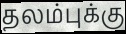
தலம்புக்கு